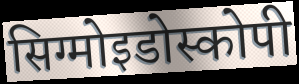
सिग्मोइडोस्कोपी